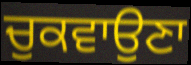
ਚੁਕਵਾਉਣਾ